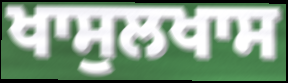
ਖਾਸੁਲਖਾਸ